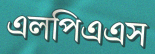
এলপিএএস